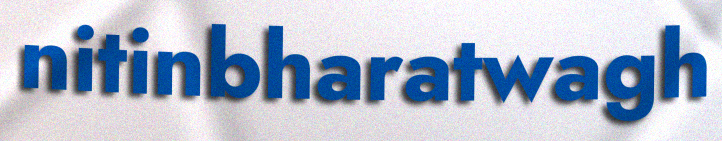
nitinbharatwagh